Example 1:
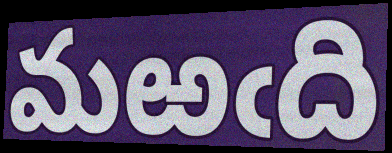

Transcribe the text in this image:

మఱఁది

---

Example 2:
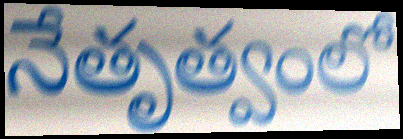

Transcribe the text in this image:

నేతృత్వంలో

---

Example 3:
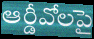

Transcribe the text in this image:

ఆర్డీవోలపై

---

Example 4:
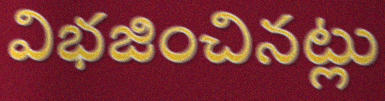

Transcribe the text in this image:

విభజించినట్లు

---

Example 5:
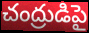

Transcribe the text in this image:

చంద్రుడిపై